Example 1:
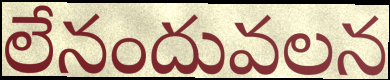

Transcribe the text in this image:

లేనందువలన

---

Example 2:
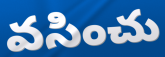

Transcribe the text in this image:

వసించు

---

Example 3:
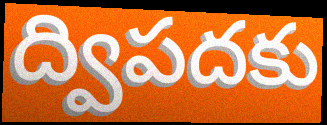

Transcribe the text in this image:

ద్విపదకు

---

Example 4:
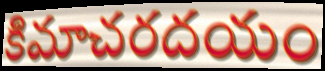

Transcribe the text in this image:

కిమాచరదయం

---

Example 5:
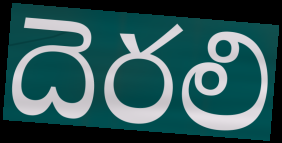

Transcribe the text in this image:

దెరలి